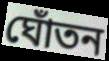
ঘোঁতন